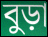
বুড়া